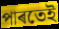
পাৰতেই